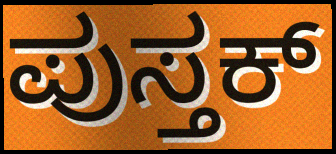
ಪುಸ್ತಕ್